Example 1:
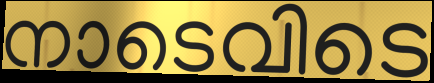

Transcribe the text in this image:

നാടെവിടെ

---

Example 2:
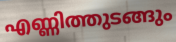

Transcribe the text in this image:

എണ്ണിത്തുടങ്ങും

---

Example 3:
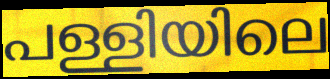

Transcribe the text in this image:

പള്ളിയിലെ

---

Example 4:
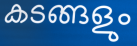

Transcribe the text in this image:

കടങ്ങളും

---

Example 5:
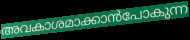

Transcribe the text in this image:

അവകാശമാക്കാൻപോകുന്ന